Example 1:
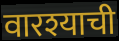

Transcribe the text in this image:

वारश्याची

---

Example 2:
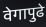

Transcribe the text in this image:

वेगापुढे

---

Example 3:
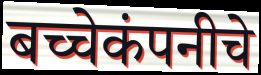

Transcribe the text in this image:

बच्चेकंपनीचे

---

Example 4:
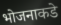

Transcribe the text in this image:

भोजनाकडे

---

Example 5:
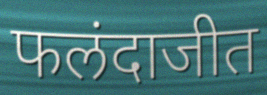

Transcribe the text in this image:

फलंदाजीत